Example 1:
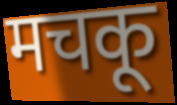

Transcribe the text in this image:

मचकू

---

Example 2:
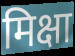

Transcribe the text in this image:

मिक्षा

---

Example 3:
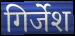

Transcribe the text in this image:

गिर्जेश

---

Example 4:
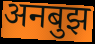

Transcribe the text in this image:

अनबुझ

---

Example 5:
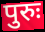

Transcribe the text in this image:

पुरुः